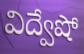
విద్వేషో